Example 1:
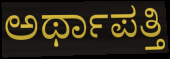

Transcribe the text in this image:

ಅರ್ಥಾಪತ್ತಿ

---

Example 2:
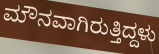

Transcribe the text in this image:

ಮೌನವಾಗಿರುತ್ತಿದ್ದಳು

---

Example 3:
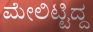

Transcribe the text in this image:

ಮೇಲಿಟ್ಟಿದ್ದ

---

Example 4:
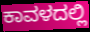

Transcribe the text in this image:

ಕಾವಳದಲ್ಲಿ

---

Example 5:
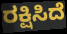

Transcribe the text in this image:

ರಕ್ಷಿಸಿದೆ